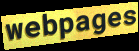
webpages